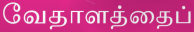
வேதாளத்தைப்